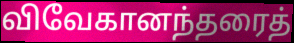
விவேகானந்தரைத்